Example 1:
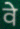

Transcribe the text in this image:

वे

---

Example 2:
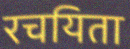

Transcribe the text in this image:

रचयिता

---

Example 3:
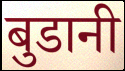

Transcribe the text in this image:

बुडानी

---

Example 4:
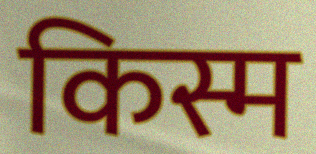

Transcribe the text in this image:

किस्म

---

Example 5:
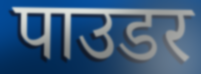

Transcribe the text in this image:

पाउडर